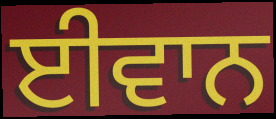
ਈਵਾਨ